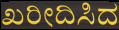
ಖರೀದಿಸಿದ